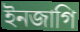
ইনজাগি